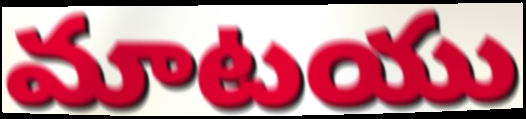
మాటయు